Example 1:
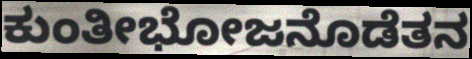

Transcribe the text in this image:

ಕುಂತೀಭೋಜನೊಡೆತನ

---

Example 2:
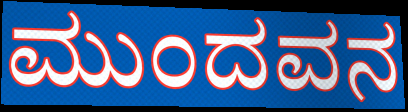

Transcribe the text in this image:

ಮುಂದವನ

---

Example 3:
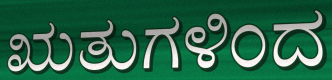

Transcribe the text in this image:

ಋತುಗಳಿಂದ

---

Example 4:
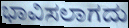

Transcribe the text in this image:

ಭಾವಿಸಲಾಗದು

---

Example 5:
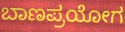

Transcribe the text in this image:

ಬಾಣಪ್ರಯೋಗ